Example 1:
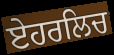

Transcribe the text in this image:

ਏਹਰਲਿਚ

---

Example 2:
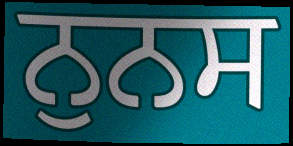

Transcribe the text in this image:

ਨੁਨਸ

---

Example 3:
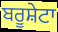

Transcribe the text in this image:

ਬਰੂਸ਼ੇਟਾ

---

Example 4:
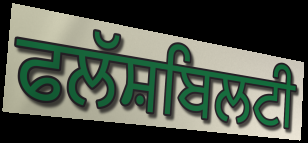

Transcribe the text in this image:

ਫਲੱਸ਼ਬਿਲਟੀ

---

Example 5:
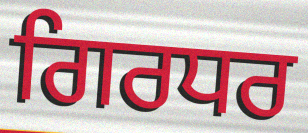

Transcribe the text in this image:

ਗਿਰਧਰ